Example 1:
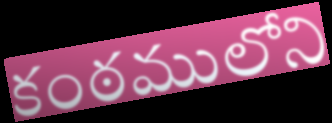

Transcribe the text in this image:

కంఠములోని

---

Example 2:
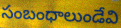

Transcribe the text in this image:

సంబంధాలుండేవి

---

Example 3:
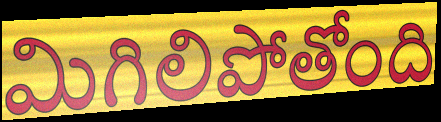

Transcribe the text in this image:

మిగిలిపోతోంది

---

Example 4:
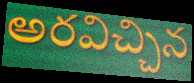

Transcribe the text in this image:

అరవిచ్చిన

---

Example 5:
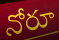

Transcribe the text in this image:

నోరూ